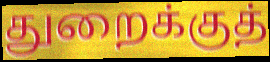
துறைக்குத்